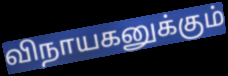
விநாயகனுக்கும்